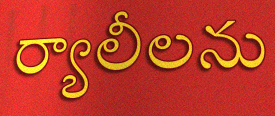
ర్యాలీలను